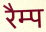
रैम्प